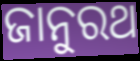
ଜାନୁରଥ